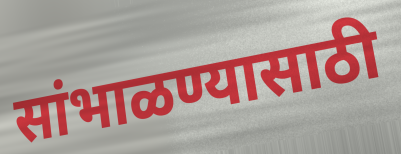
सांभाळण्यासाठी